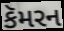
કૅમરન